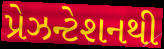
પ્રેઝન્ટેશનથી